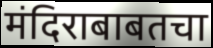
मंदिराबाबतचा